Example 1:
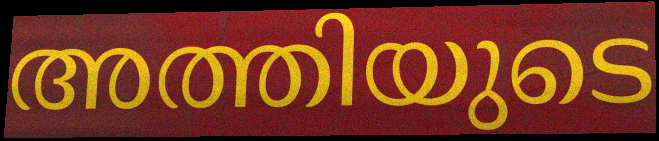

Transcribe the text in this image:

അത്തിയുടെ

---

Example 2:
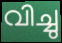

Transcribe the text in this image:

വിച്ചു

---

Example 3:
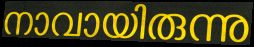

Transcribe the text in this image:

നാവായിരുന്നു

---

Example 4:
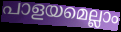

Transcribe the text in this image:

പാളയമെല്ലാം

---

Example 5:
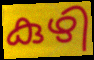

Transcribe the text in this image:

കുഴി